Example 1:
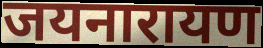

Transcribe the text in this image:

जयनारायण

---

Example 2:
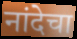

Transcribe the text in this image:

नांदेचा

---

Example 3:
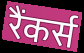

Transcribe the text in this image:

रैंकर्स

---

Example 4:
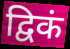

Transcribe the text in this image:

द्विकं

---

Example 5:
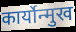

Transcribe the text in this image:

कार्योन्मुख